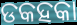
ଡକହକା